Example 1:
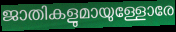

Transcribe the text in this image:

ജാതികളുമായുള്ളോരേ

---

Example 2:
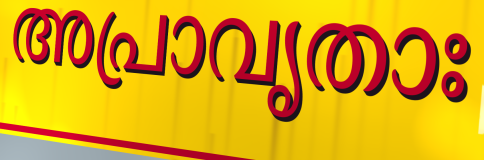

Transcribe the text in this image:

അപ്രാവൃതാഃ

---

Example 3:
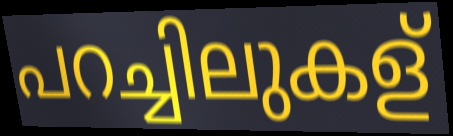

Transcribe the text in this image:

പറച്ചിലുകള്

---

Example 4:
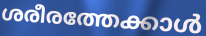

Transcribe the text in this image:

ശരീരത്തേക്കാൾ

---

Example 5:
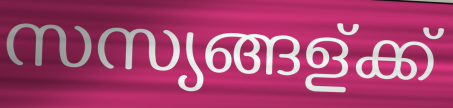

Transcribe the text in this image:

സസ്യങ്ങള്ക്ക്